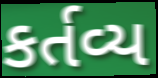
કર્તવ્ય